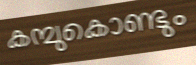
കമ്പുകൊണ്ടും